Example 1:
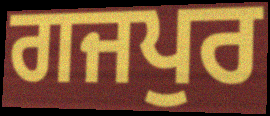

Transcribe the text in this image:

ਗਜਪੁਰ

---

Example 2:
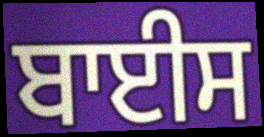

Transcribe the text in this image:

ਬਾਈਸ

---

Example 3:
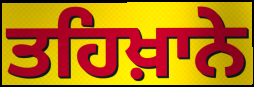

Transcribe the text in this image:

ਤਹਿਖ਼ਾਨੇ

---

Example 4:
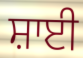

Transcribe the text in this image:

ਸ਼ਾਈ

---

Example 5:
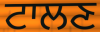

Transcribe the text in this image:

ਟਾਲਣ